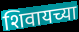
शिवायच्या